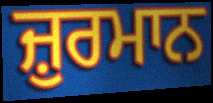
ਜ਼ੁਰਮਾਨ